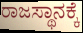
ರಾಜಸ್ಥಾನಕ್ಕೆ